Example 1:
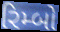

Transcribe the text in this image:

રિમ્બો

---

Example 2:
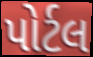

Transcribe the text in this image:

પોર્ટલ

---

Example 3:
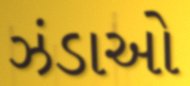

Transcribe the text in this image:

ઝંડાઓ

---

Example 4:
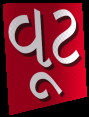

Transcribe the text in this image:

વૂટ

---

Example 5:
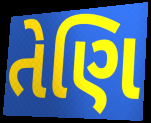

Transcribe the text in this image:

તેણિ